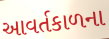
આવર્તકાળના